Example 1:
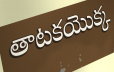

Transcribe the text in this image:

తాటకయొక్క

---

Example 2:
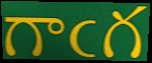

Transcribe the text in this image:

గాఁగ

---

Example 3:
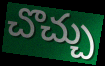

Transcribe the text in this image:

చొచ్చు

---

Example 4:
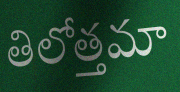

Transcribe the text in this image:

తిలోత్తమా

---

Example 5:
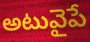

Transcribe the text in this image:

అటువైపే